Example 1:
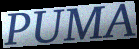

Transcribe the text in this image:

PUMA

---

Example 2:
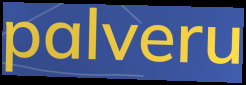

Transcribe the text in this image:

palveru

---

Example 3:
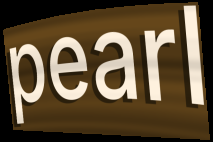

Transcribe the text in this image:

pearl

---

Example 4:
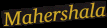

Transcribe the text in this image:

Mahershala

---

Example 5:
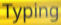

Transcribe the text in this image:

Typing